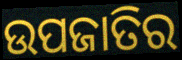
ଉପଜାତିର